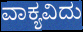
ವಾಕ್ಯವಿದು